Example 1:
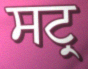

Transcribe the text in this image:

ਸਟ੍ਰ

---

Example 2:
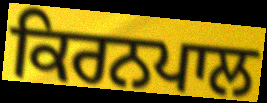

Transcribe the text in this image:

ਕਿਰਨਪਾਲ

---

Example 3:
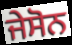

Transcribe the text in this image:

ਜੇਸੋਨ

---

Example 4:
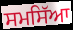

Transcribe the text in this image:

ਸਮਸਿੱਆ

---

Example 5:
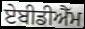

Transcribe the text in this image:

ਏਬੀਡੀਐੱਮ